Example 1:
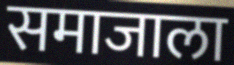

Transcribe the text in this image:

समाजाला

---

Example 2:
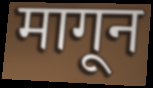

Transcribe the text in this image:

मागून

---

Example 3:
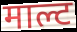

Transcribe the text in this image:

माल्ट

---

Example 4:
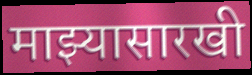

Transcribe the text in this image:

माझ्यासारखी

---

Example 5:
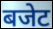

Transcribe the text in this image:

बजेट